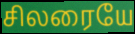
சிலரையே